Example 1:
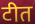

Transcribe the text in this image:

टीत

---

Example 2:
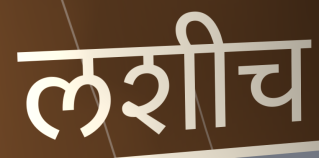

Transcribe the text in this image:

लशीच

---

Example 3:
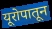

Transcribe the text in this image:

यूरोपातून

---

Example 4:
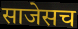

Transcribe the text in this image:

साजेसच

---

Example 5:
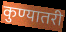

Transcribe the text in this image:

कुण्यातरी